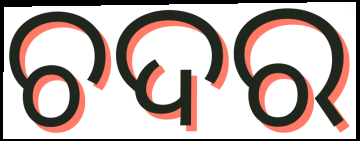
ଚଦର